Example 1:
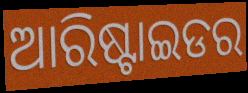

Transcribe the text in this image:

ଆରିଷ୍ଟାଇଡର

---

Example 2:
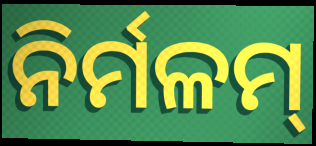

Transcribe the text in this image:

ନିର୍ମଳମ୍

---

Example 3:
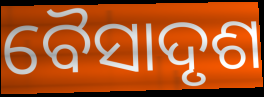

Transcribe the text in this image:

ବୈସାଦୃଶ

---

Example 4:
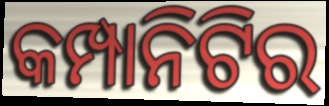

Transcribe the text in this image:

କମ୍ପାନିଟିର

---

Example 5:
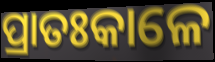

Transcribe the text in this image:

ପ୍ରାତଃକାଳେ